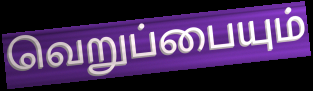
வெறுப்பையும்